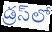
డ్రస్‌లో